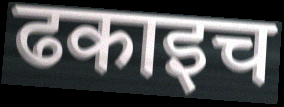
ढकाइच